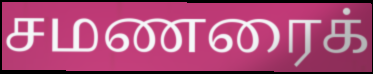
சமணரைக்